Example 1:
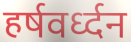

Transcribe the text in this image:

हर्षवर्ध्दन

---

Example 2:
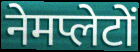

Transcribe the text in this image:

नेमप्लेटों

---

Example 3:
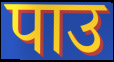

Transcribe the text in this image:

पाउ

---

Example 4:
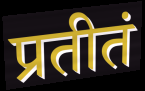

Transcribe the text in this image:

प्रतीतं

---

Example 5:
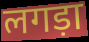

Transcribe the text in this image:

लगड़ा